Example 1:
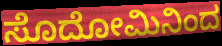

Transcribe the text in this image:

ಸೊದೋಮಿನಿಂದ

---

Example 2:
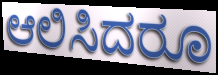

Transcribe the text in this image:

ಆಲಿಸಿದರೂ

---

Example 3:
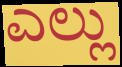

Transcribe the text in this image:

ಎಲ್ಲು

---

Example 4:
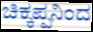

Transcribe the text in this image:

ಚಿಕ್ಕಪ್ಪನಿಂದ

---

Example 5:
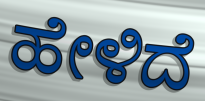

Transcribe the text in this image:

ಹೇಳಿದೆ